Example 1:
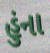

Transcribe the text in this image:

હુંના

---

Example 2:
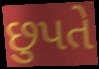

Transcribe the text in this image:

છુપતે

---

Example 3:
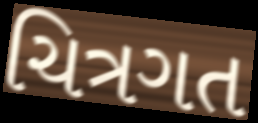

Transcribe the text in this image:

ચિત્રગત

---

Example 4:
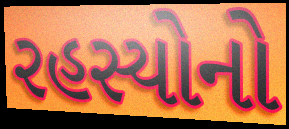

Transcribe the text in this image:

રહસ્યોનો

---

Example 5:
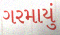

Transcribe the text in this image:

ગરમાયું